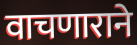
वाचणाराने